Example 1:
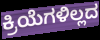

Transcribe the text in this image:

ಕ್ರಿಯೆಗಳಿಲ್ಲದ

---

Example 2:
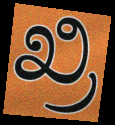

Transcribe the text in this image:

ಖ್ರಿ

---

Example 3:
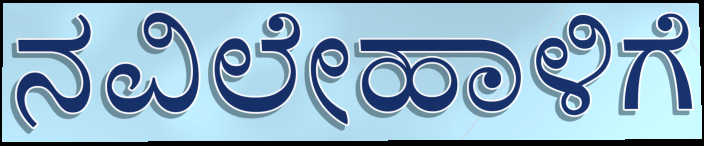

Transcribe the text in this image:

ನವಿಲೇಹಾಳಿಗೆ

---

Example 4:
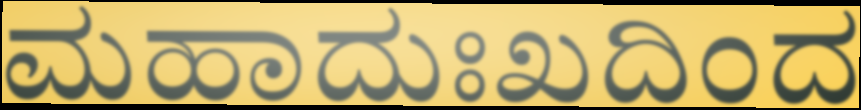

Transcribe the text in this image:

ಮಹಾದುಃಖದಿಂದ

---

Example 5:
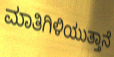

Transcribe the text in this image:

ಮಾತಿಗಿಳಿಯುತ್ತಾನೆ